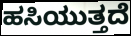
ಹಸಿಯುತ್ತದೆ